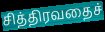
சித்திரவதைச்